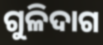
ଗୁଳିଦାଗ